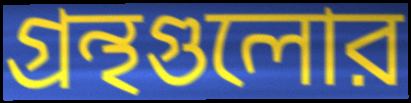
গ্রন্থগুলোর